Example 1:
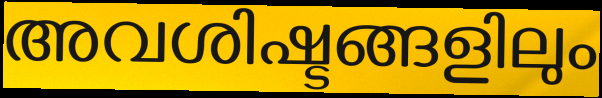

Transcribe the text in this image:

അവശിഷ്ടങ്ങളിലും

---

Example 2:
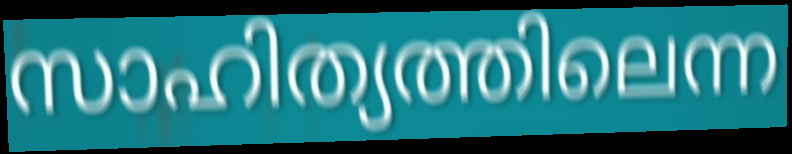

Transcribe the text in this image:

സാഹിത്യത്തിലെന്ന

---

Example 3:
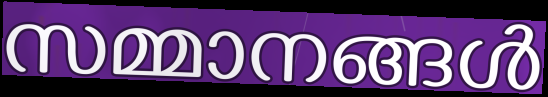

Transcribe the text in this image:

സമ്മാനങ്ങൾ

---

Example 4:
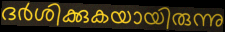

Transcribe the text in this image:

ദർശിക്കുകയായിരുന്നു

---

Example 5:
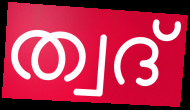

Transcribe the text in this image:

ത്വദ്